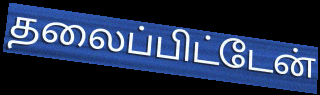
தலைப்பிட்டேன்